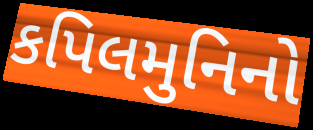
કપિલમુનિનો